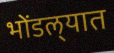
भोंडल्यात